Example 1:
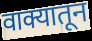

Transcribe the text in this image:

वाक्यातून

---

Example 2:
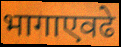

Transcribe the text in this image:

भागाएवढे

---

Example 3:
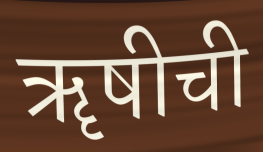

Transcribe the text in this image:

ॠषीची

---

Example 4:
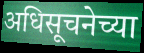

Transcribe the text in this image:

अधिसूचनेच्या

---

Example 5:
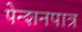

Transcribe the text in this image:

पेन्शनपात्र